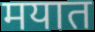
मयात